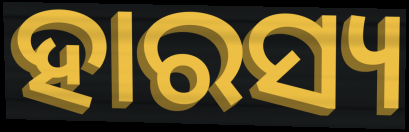
ହାରସ୍ୟ